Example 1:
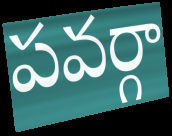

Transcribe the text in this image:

పవర్గా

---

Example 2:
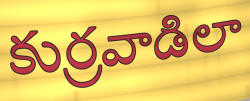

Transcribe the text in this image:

కుర్రవాడిలా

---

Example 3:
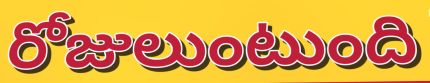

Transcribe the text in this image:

రోజులుంటుంది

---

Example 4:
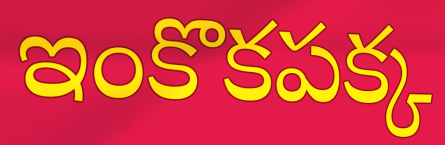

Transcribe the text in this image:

ఇంకొకపక్క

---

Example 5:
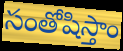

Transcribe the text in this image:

సంతోషిస్తాం